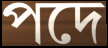
পদে